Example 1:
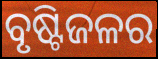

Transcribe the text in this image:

ବୃଷ୍ଟିଜଳର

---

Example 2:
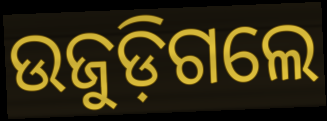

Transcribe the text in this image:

ଉଜୁଡ଼ିଗଲେ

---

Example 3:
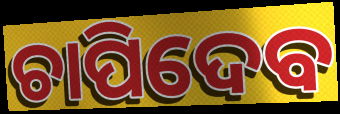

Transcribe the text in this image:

ଚାପିଦେବ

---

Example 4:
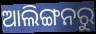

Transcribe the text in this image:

ଆଲିଙ୍ଗନରୁ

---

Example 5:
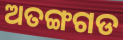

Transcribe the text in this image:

ଅତଙ୍ଗଗଡ